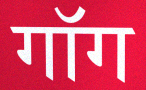
गॉग